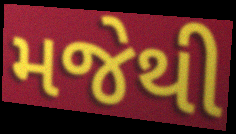
મજેથી